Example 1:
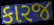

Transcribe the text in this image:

કારજ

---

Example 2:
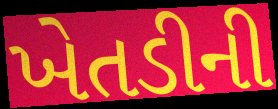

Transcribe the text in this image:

ખેતડીની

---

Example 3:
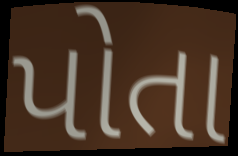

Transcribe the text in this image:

પોતા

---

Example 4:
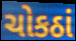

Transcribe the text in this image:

ચોકઠાં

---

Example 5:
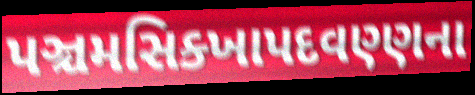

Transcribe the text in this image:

પઞ્ચમસિક્ખાપદવણ્ણના